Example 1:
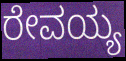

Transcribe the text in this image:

ರೇವಯ್ಯ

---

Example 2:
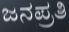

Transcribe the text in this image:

ಜನಪ್ರತಿ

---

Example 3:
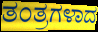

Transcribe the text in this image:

ತಂತ್ರಗಳಾದ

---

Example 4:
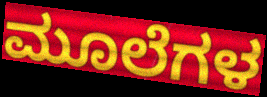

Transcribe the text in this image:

ಮೂಲೆಗಳ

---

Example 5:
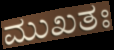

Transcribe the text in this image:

ಮುಖತಃ